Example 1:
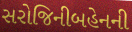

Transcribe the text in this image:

સરોજિનીબહેનની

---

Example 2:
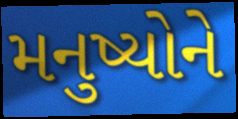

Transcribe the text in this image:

મનુષ્યોને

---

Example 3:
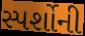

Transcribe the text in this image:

સ્પર્શોની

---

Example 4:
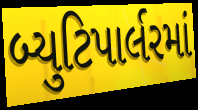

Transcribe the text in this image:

બ્યુટિપાર્લરમાં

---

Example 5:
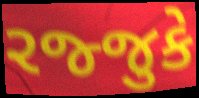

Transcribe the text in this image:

રજ્જુકે